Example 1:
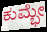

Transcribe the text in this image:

ಕುಮ್ಭೇ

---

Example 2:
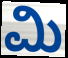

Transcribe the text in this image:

ಮಿ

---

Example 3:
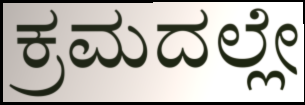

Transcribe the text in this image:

ಕ್ರಮದಲ್ಲೇ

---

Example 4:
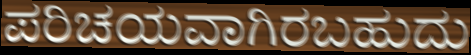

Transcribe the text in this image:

ಪರಿಚಯವಾಗಿರಬಹುದು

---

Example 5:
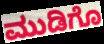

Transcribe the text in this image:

ಮುಡಿಗೊ